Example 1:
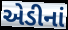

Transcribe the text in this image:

એડીનાં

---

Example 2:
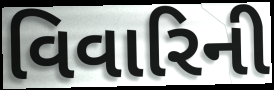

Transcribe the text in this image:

વિવારિની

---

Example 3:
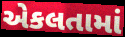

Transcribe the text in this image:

એકલતામાં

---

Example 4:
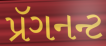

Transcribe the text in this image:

પ્રૅગનન્ટ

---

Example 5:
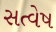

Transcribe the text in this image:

સત્વેષ